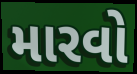
મારવો